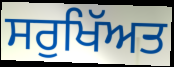
ਸਰੁਖਿੱਅਤ